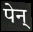
पेन्